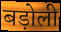
बड़ोली